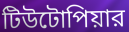
টিউটোপিয়ার